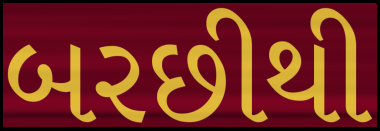
બરછીથી